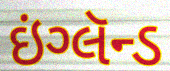
ઇંગ્લૅન્ડ